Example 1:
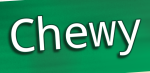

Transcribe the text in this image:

Chewy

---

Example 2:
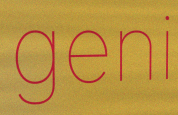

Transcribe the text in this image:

geni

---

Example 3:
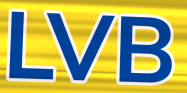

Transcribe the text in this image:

LVB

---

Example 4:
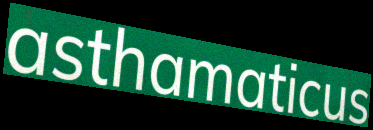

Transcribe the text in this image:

asthamaticus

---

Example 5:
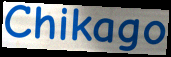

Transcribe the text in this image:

Chikago